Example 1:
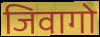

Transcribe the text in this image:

जिवागो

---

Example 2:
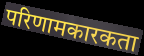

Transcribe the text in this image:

परिणामकारकता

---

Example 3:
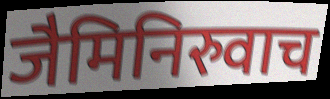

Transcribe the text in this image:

जैमिनिरुवाच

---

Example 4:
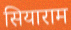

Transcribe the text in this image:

सियाराम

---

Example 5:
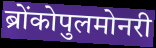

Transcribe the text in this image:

ब्रोंकोपुलमोनरी